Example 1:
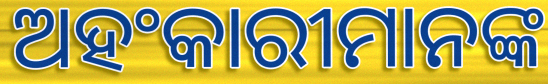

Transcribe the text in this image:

ଅହଂକାରୀମାନଙ୍କ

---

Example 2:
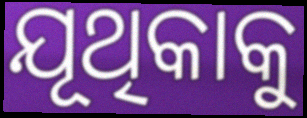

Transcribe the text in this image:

ଯୂଥିକାକୁ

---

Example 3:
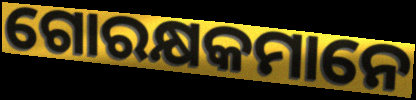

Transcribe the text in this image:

ଗୋରକ୍ଷକମାନେ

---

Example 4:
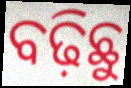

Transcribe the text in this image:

ବଢ଼ିଛୁ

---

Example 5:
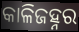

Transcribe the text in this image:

କାଳିଜହ୍ନର